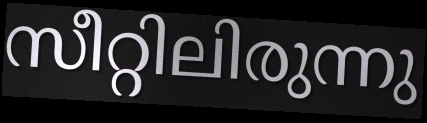
സീറ്റിലിരുന്നു